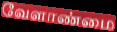
வேளாண்மை